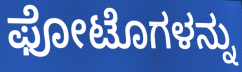
ಫೋಟೊಗಳನ್ನು